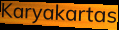
Karyakartas